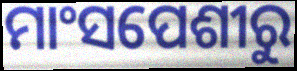
ମାଂସପେଶୀରୁ